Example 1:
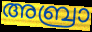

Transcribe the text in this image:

അബ്രാ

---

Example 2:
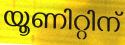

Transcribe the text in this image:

യൂണിറ്റിന്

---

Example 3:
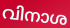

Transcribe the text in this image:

വിനാശ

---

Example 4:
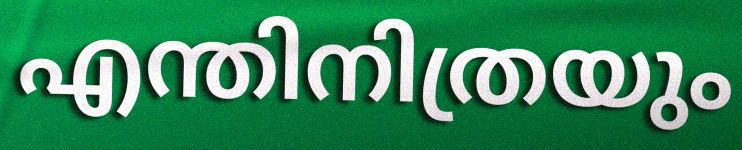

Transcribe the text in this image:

എന്തിനിത്രയും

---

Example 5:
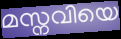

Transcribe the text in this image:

മസ്നവിയെ